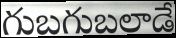
గుబగుబలాడే